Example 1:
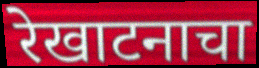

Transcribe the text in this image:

रेखाटनाचा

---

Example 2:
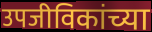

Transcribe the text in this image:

उपजीविकांच्या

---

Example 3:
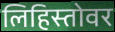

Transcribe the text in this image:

लिहिस्तोवर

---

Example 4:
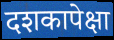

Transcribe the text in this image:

दशकापेक्षा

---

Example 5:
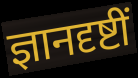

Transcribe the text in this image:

ज्ञानदृष्टीं